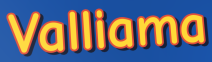
Valliama